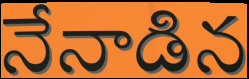
నేనాడిన